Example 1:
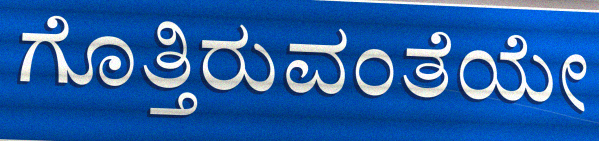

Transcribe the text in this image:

ಗೊತ್ತಿರುವಂತೆಯೇ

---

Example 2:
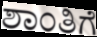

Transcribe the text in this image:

ಶಾಂತಿಗೆ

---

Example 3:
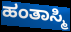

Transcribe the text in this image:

ಹಂತಾಸ್ಮಿ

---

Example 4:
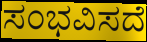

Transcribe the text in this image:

ಸಂಭವಿಸದೆ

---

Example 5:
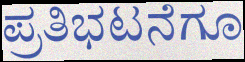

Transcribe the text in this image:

ಪ್ರತಿಭಟನೆಗೂ